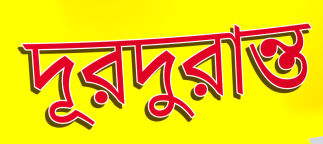
দূরদুরান্ত